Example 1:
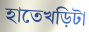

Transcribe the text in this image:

হাতেখড়িটা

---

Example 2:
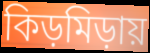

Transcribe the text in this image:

কিড়মিড়ায়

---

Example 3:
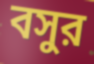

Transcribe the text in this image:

বসুর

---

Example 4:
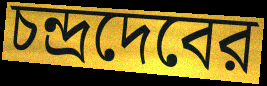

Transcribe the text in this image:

চন্দ্রদেবের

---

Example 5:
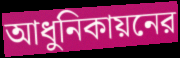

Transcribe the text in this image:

আধুনিকায়নের